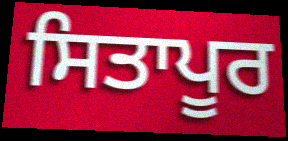
ਸਿਤਾਪੂਰ